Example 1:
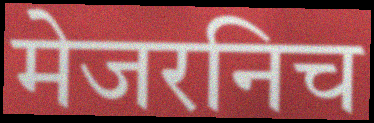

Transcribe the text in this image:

मेजरनिच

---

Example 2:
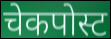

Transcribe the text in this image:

चेकपोस्ट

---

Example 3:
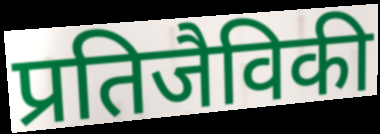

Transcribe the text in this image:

प्रतिजैविकी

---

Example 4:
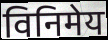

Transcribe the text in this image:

विनिमेय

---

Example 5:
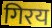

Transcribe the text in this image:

गिरय